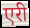
एरी